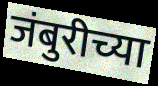
जंबुरीच्या